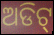
ଅଡିଟ୍